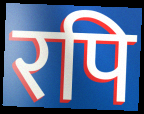
रपि